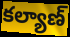
కల్యాణ్